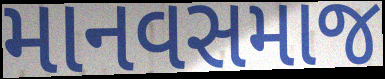
માનવસમાજ